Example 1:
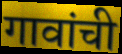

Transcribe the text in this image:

गावांची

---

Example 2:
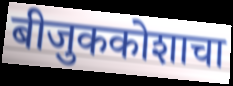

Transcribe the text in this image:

बीजुककोशाचा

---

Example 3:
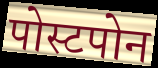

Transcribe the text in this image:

पोस्टपोन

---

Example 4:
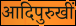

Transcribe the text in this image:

आदिपुरुखीं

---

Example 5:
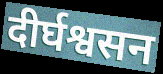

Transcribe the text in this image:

दीर्घश्वसन